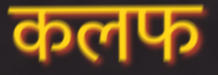
कलफ